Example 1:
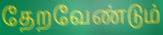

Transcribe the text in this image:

தேறவேண்டும்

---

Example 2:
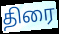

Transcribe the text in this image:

திரை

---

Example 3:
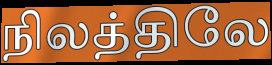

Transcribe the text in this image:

நிலத்திலே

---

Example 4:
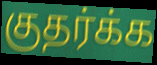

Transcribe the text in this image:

குதர்க்க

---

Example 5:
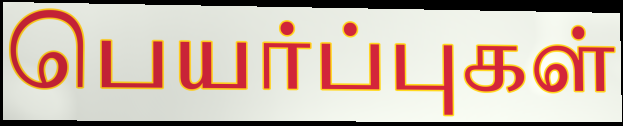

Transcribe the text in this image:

பெயர்ப்புகள்